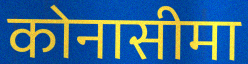
कोनासीमा